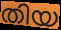
തിയ